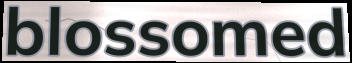
blossomed